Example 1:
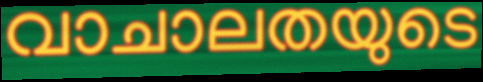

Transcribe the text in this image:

വാചാലതയുടെ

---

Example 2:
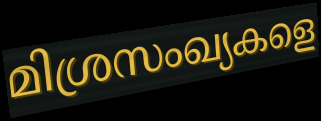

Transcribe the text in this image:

മിശ്രസംഖ്യകളെ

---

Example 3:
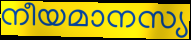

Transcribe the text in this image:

നീയമാനസ്യ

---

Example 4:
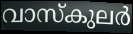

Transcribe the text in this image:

വാസ്കുലർ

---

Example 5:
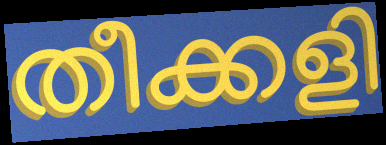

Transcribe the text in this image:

തീക്കളി